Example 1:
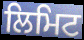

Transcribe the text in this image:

ਲਿਮਿਟ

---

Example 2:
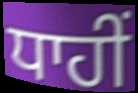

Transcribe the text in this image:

ਧਾਹੀਂ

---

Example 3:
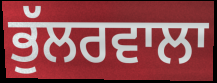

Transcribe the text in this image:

ਭੁੱਲਰਵਾਲਾ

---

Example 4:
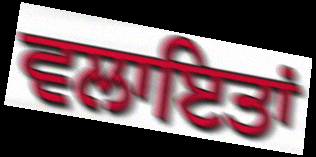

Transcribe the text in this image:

ਵਲਾਇਤਾਂ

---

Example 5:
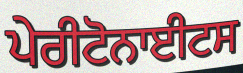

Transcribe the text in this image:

ਪੇਰੀਟੋਨਾਈਟਸ